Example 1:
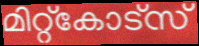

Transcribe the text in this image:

മിറ്റ്കോട്സ്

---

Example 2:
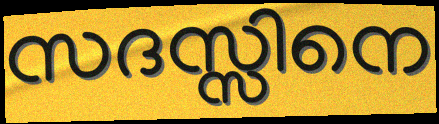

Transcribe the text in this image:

സദസ്സിനെ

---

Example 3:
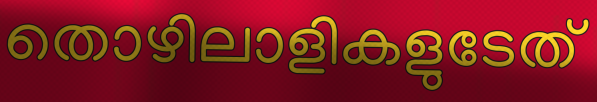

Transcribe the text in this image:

തൊഴിലാളികളുടേത്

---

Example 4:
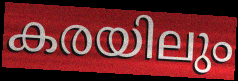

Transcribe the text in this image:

കരയിലും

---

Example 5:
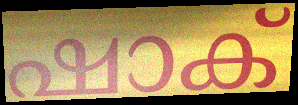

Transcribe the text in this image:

ഷാക്